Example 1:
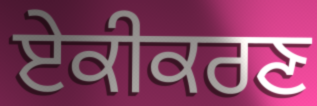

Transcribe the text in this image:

ਏਕੀਕਰਣ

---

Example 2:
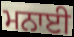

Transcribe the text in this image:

ਮਨਾਈ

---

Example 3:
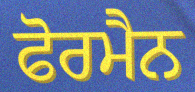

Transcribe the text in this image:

ਫੋਰਮੈਨ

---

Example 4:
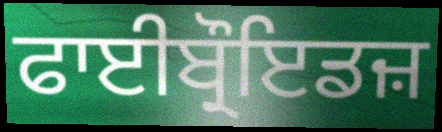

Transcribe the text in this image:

ਫਾਈਬ੍ਰੌਇਡਜ਼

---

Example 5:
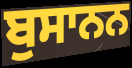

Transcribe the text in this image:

ਬੁਸਾਨਨ